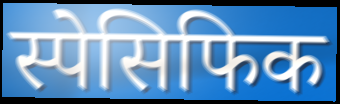
स्पेसिफिक